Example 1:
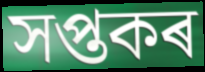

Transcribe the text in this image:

সপ্তকৰ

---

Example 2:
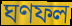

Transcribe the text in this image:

ঘণফল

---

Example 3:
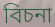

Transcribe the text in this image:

বিচনা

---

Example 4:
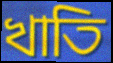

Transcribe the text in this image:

খাতি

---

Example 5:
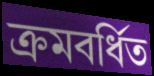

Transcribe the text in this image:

ক্ৰমবৰ্ধিত